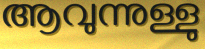
ആവുന്നുള്ളു